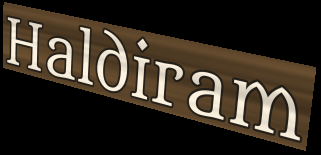
Haldiram